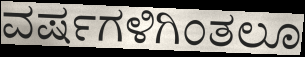
ವರ್ಷಗಳಿಗಿಂತಲೂ